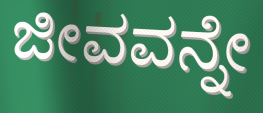
ಜೀವವನ್ನೇ